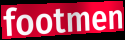
footmen